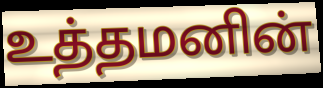
உத்தமனின்